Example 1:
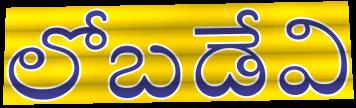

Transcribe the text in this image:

లోబడేవి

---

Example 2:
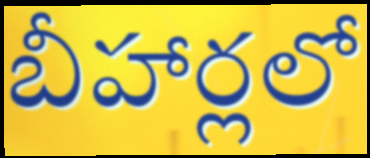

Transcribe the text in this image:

బీహార్లలో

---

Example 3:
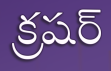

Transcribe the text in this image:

క్రషర్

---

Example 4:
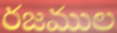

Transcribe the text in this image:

రజముల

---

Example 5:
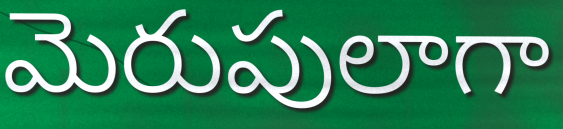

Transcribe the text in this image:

మెరుపులాగా